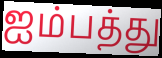
ஐம்பத்து